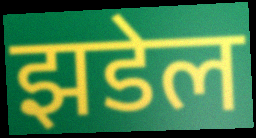
झडेल